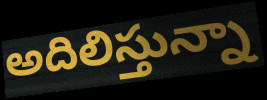
అదిలిస్తున్నా